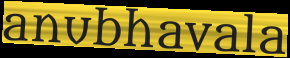
anubhavala